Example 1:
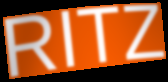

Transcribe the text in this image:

RITZ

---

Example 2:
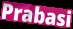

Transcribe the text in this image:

Prabasi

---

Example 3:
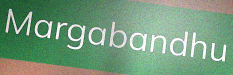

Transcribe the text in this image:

Margabandhu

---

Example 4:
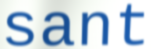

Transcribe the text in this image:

sant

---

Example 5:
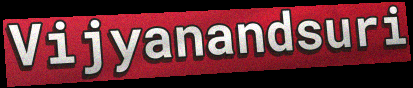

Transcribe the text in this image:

Vijyanandsuri